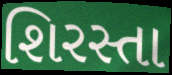
શિરસ્તા